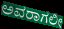
ಅವರಾಗಲೀ